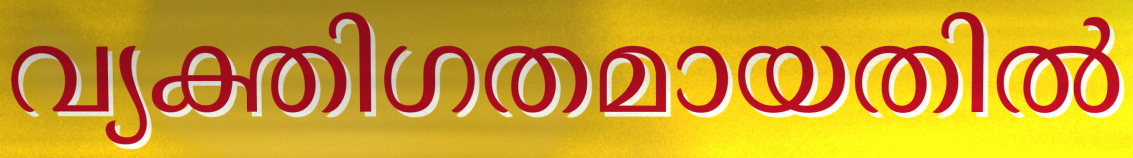
വ്യക്തിഗതമായതിൽ